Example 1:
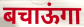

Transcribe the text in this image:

बचाऊंगा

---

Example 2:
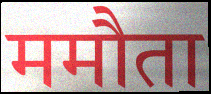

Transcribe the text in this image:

ममौता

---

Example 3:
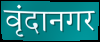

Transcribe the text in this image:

वृंदानगर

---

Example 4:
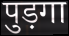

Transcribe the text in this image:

पुड़गा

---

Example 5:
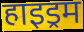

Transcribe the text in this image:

हाइड्रम